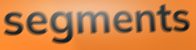
segments